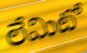
లేమిటో